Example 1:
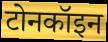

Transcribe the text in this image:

टोनकॉइन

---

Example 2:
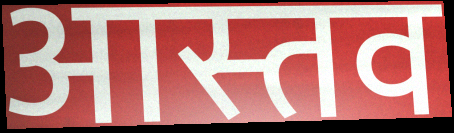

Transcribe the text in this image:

आस्तव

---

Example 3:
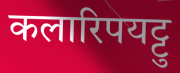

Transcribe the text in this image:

कलारिपयट्टु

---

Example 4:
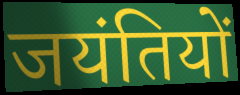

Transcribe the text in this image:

जयंतियों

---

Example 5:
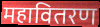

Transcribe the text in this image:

महावितरण